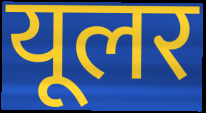
यूलर